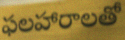
ఫలహారాలతో